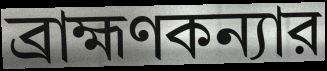
ব্রাহ্মণকন্যার